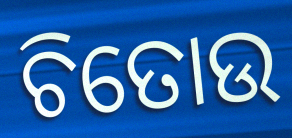
ଚିତୋଉ